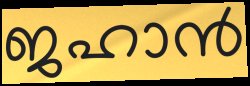
ജഹാൻ